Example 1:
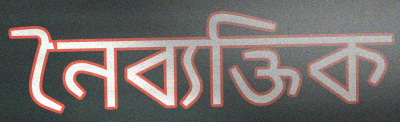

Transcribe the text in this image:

নৈব্যক্তিক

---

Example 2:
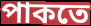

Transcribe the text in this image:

পাকতে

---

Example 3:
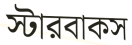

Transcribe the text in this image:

স্টারবাকস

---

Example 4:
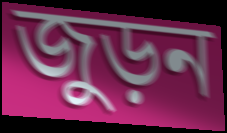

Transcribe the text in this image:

জুড়ন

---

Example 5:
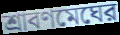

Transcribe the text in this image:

শ্রাবণমেঘের